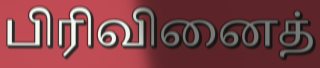
பிரிவினைத்